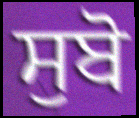
ਸੁਬੋ